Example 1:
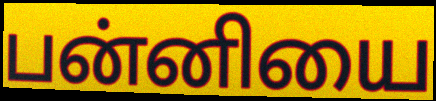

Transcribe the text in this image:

பன்னியை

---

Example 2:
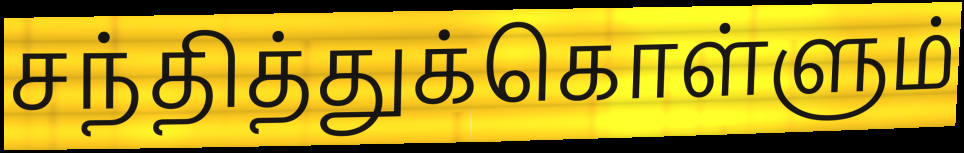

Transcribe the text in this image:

சந்தித்துக்கொள்ளும்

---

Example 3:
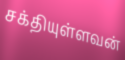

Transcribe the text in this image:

சக்தியுள்ளவன்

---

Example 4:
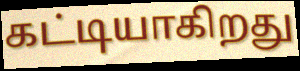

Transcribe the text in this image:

கட்டியாகிறது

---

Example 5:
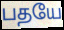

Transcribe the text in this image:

பதயே